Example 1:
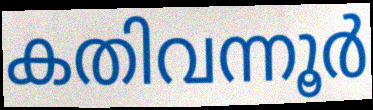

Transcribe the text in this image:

കതിവന്നൂർ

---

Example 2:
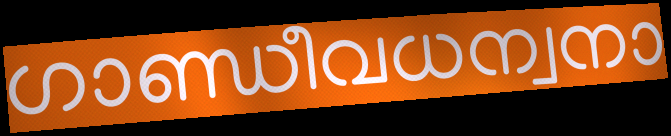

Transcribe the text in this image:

ഗാണ്ഡീവധന്വനാ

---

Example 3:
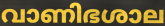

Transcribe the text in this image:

വാണിഭശാല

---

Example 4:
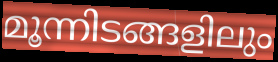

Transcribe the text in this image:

മൂന്നിടങ്ങളിലും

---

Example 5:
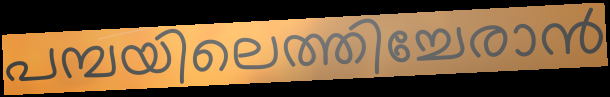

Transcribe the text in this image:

പമ്പയിലെത്തിച്ചേരാൻ